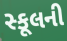
સ્કૂલની